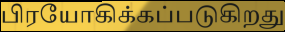
பிரயோகிக்கப்படுகிறது